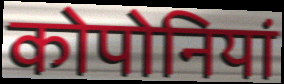
कोपोनियां